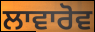
ਲਾਵਾਰੋਵ